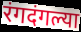
रंगदंगल्या